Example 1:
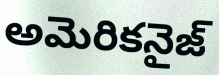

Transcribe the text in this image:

అమెరికనైజ్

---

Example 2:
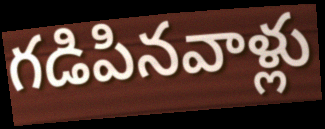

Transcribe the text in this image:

గడిపినవాళ్లు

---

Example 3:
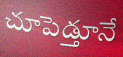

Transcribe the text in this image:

చూపెడ్తూనే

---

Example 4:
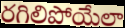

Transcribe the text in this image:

రగిలిపోయేలా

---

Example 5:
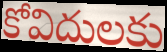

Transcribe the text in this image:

కోవిదులకు